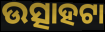
ଉତ୍ସାହଟା